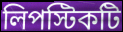
লিপস্টিকটি